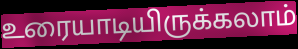
உரையாடியிருக்கலாம்